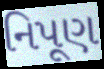
નિપૂણ